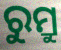
ରୁମ୍ରୁ